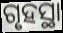
ଗୃହସ୍ଥା